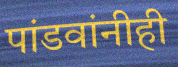
पांडवांनीही